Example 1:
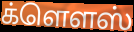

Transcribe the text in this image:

க்ளௌஸ்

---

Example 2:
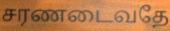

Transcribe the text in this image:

சரணடைவதே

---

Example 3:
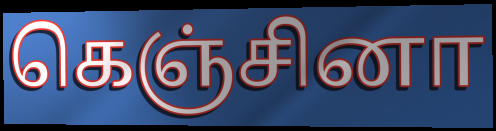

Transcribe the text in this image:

கெஞ்சினா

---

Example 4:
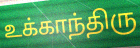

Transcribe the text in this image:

உக்காந்திரு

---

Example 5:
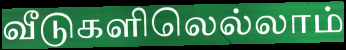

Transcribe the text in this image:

வீடுகளிலெல்லாம்